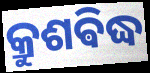
କ୍ରୁଶଵିଦ୍ଧ